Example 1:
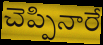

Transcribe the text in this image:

చెప్పినారే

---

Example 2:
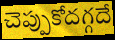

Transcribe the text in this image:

చెప్పుకోదగ్గదే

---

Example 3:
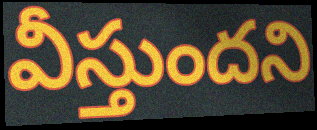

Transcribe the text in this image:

వీస్తుందని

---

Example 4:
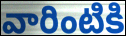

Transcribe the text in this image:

వారింటికి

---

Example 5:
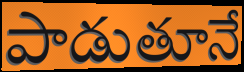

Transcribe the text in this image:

పాడుతూనే